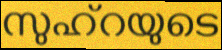
സുഹ്റയുടെ